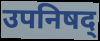
उपनिषद्